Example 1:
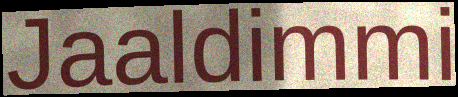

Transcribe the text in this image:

Jaaldimmi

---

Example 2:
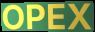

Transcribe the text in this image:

OPEX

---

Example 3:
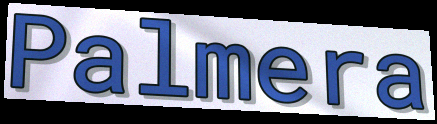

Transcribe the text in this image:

Palmera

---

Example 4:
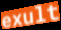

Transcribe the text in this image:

exult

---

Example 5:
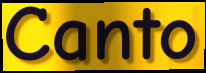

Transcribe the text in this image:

Canto